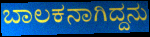
ಬಾಲಕನಾಗಿದ್ದನು